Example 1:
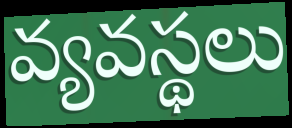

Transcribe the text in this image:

వ్యవస్థలు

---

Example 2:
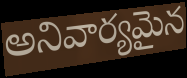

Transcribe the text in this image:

అనివార్యమైన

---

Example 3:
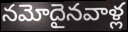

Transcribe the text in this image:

నమోదైనవాళ్ల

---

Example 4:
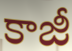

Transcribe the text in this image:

కాజీ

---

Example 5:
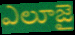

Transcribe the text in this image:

ఎలూజై